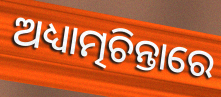
ଅଧ୍ୟାତ୍ମଚିନ୍ତାରେ